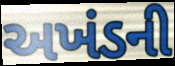
અખંડની